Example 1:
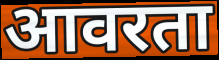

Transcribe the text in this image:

आवरता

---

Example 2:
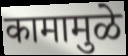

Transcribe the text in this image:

कामामुळे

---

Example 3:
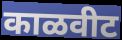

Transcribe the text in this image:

काळवीट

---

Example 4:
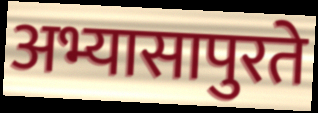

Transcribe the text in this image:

अभ्यासापुरते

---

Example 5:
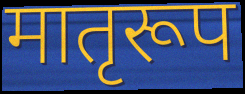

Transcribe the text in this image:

मातृरूप